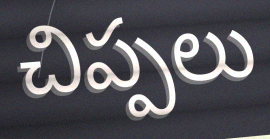
చిప్పలు